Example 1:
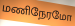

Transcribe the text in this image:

மணிநேரமோ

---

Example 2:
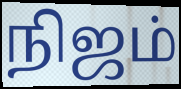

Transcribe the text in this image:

நிஜம்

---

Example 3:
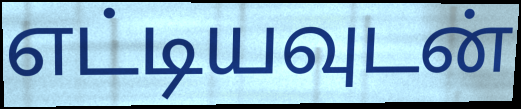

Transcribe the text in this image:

எட்டியவுடன்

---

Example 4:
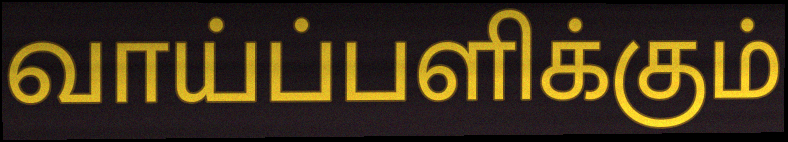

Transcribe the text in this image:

வாய்ப்பளிக்கும்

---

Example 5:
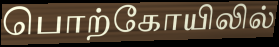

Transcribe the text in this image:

பொற்கோயிலில்